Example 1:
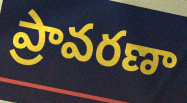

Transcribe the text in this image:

ప్రావరణా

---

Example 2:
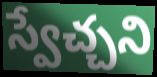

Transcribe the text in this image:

స్వేచ్చని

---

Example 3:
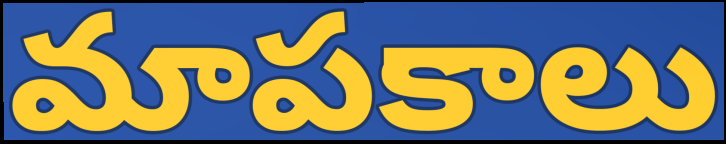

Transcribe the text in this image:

మాపకాలు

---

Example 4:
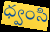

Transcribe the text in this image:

ధ్వంసి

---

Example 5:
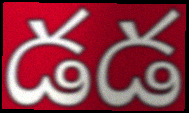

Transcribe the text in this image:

డడ